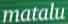
matalu